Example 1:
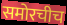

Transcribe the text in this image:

समोरचीच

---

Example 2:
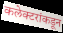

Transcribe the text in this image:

कलेक्टरांकडून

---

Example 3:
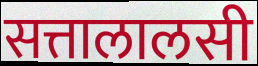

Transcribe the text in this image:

सत्तालालसी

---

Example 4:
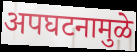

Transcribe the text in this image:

अपघटनामुळे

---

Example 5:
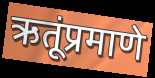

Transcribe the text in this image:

ऋतूंप्रमाणे